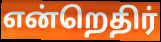
என்றெதிர்